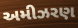
અમીઝરણ